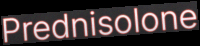
Prednisolone